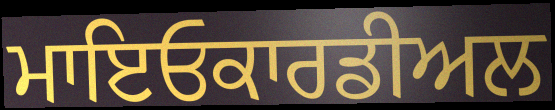
ਮਾਇਓਕਾਰਡੀਅਲ